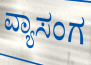
ವ್ಯಾಸಂಗ